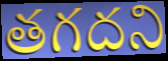
తగదని